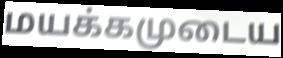
மயக்கமுடைய